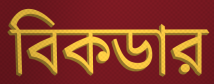
বিকডার